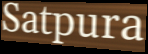
Satpura